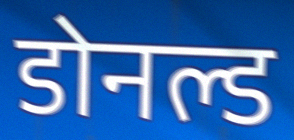
डोनल्‍ड